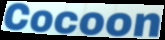
Cocoon